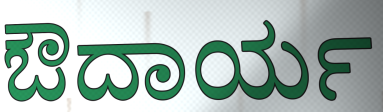
ಔದಾರ್ಯ